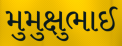
મુમુક્ષુભાઈ